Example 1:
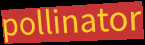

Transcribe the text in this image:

pollinator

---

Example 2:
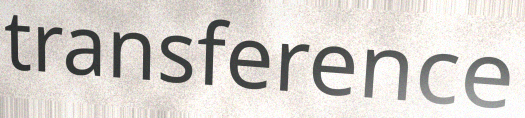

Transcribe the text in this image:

transference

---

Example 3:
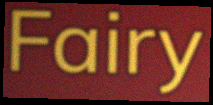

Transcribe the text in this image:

Fairy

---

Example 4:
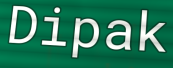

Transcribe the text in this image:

Dipak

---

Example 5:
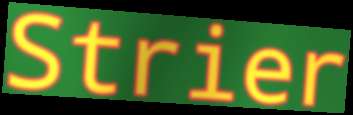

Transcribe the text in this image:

Strier